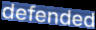
defended